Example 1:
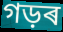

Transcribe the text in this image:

গড়ৰ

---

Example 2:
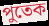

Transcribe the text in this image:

পুতেক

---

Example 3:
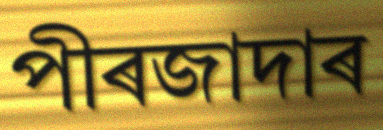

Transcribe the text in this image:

পীৰজাদাৰ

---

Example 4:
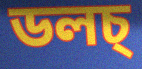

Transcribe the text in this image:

ডলচ্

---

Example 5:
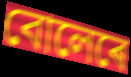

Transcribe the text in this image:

বোলেৰে